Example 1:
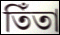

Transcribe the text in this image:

তিঁতা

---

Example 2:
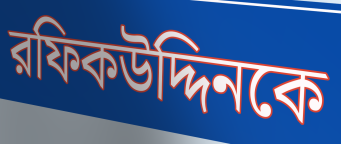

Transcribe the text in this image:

রফিকউদ্দিনকে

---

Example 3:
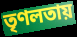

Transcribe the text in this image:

তৃণলতায়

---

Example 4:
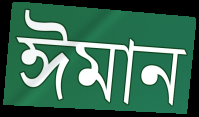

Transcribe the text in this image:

ঈমান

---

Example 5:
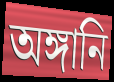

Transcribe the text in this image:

অঙ্গানি